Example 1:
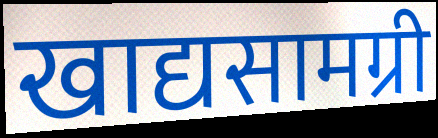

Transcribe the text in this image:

खाद्यसामग्री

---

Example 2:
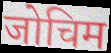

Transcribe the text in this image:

जोचिम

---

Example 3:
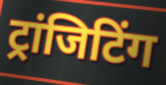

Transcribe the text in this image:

ट्रांजिटिंग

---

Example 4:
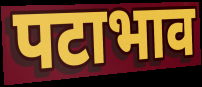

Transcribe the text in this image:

पटाभाव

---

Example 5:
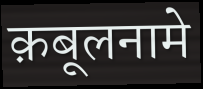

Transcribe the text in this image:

क़बूलनामे